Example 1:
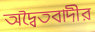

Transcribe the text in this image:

অদ্বৈতবাদীর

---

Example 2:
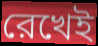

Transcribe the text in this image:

রেখেই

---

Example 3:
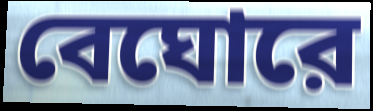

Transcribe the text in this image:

বেঘোরে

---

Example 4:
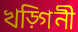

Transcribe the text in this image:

খড়্গিনী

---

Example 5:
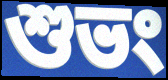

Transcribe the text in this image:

শুভং